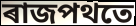
ৰাজপথতে